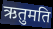
ऋतुमति